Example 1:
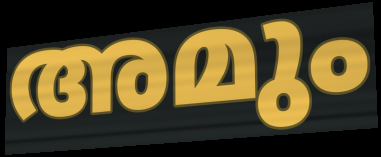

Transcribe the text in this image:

അമും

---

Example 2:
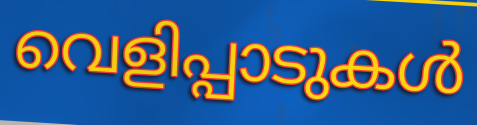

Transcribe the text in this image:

വെളിപ്പാടുകൾ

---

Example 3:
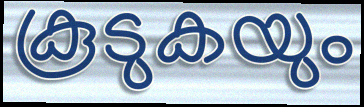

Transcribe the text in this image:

കൂടുകയും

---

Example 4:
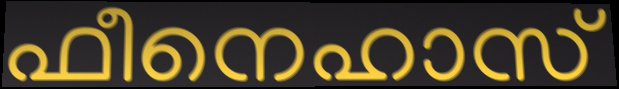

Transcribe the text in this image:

ഫീനെഹാസ്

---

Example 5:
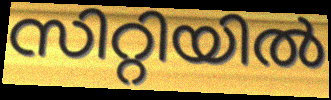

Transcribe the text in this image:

സിറ്റിയിൽ